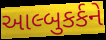
આલ્બુકર્કને